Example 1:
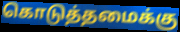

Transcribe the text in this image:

கொடுத்தமைக்கு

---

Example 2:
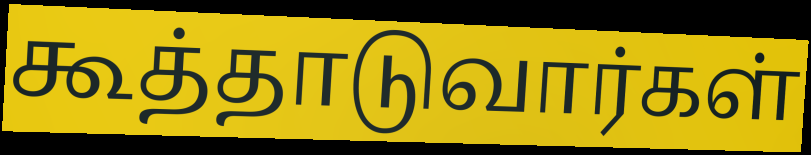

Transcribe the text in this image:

கூத்தாடுவார்கள்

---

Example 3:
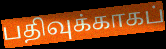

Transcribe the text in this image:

பதிவுக்காகப்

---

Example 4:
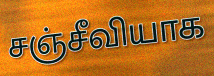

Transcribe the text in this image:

சஞ்சீவியாக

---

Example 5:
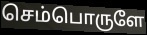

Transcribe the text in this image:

செம்பொருளே